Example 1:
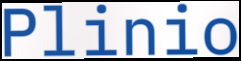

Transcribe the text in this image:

Plinio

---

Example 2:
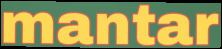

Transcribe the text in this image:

mantar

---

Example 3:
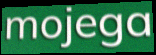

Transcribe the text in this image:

mojega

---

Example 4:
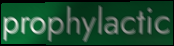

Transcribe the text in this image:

prophylactic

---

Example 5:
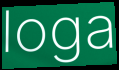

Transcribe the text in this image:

loga